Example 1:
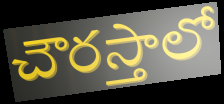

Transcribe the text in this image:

చౌరస్తాలో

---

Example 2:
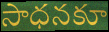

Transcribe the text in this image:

సాధనకూ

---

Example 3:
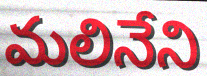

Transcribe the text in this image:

మలినేని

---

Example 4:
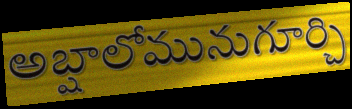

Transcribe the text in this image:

అబ్షాలోమునుగూర్చి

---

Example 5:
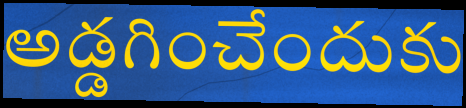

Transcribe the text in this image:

అడ్డగించేందుకు